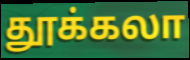
தூக்கலா